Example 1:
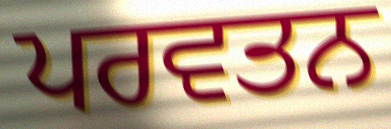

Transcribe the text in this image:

ਪਰਵਤਨ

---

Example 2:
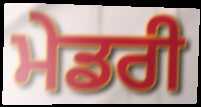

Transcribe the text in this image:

ਮੇਡਰੀ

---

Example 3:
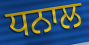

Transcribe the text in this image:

ਧਨਾਲ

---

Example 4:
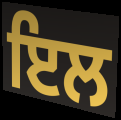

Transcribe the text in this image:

ਇਲ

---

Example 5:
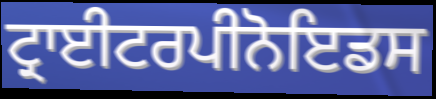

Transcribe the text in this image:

ਟ੍ਰਾਈਟਰਪੀਨੋਇਡਸ